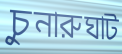
চুনারুঘাট